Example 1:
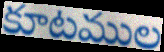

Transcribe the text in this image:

కూటముల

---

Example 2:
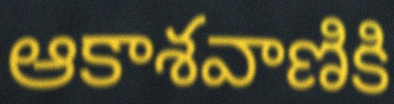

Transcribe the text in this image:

ఆకాశవాణికి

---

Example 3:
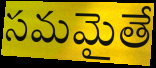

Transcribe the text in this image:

సమమైతే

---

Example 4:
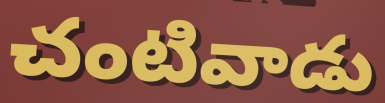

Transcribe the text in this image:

చంటివాడు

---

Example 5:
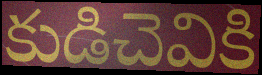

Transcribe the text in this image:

కుడిచెవికి